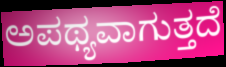
ಅಪಥ್ಯವಾಗುತ್ತದೆ